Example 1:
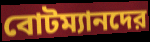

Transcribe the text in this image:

বোটম্যানদের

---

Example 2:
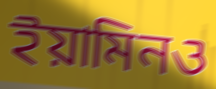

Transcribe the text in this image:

ইয়ামিনও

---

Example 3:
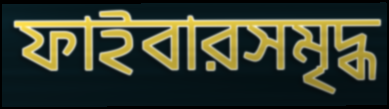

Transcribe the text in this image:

ফাইবারসমৃদ্ধ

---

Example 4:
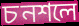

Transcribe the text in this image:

চনশলে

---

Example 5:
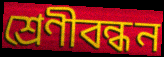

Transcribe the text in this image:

শ্রেণীবন্ধন